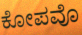
ಕೋಪವೊ